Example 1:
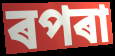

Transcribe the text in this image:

ৰপৰা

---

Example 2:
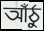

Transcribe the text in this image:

আঁঠু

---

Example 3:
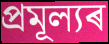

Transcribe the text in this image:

প্ৰমূল্যৰ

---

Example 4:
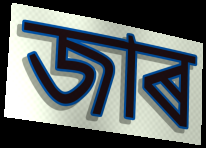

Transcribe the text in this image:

জাৰ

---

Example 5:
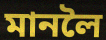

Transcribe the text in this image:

মানলৈ